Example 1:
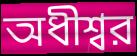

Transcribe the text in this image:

অধীশ্বর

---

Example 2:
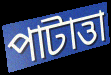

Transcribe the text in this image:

পাটাত্তা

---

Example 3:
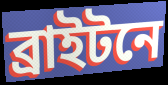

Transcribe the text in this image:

ব্রাইটনে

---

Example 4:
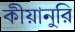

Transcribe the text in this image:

কীয়ানুরি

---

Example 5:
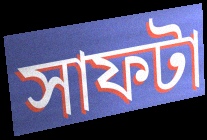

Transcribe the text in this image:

সাফটা